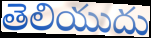
తెలియుదు